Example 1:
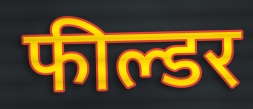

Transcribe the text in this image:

फील्डर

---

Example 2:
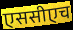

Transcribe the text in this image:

एससीएच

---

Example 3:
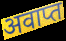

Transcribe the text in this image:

अवाप्त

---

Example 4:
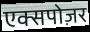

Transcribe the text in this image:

एक्सपोज़र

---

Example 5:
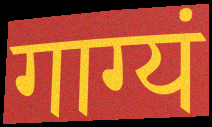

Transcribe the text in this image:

गाग्यं